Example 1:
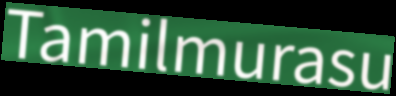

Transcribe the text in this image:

Tamilmurasu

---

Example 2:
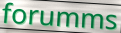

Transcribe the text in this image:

forumms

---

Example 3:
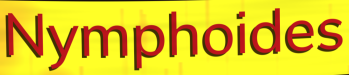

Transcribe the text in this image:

Nymphoides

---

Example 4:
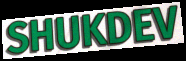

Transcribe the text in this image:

SHUKDEV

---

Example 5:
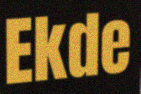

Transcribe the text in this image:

Ekde